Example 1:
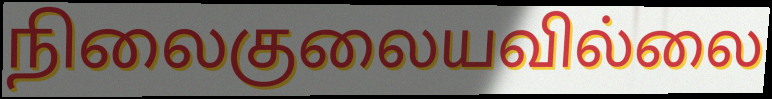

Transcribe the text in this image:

நிலைகுலையவில்லை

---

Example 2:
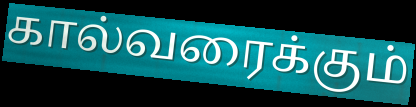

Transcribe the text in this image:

கால்வரைக்கும்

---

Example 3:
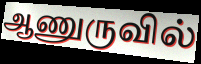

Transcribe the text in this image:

ஆணுருவில்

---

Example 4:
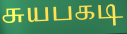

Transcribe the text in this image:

சுயபகடி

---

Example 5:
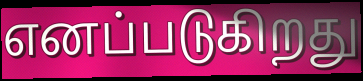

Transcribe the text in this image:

எனப்படுகிறது